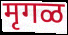
मृगळ